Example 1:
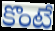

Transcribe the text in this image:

కొంటే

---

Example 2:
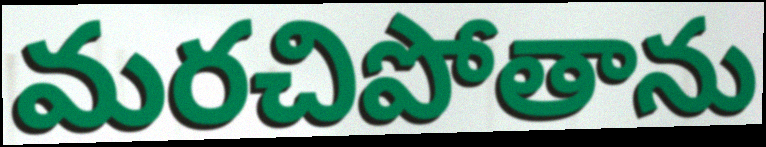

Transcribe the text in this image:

మరచిపోతాను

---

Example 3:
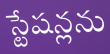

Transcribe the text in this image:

స్టేషన్లను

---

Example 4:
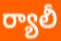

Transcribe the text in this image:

ర్యాలీ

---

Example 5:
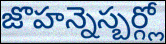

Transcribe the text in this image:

జొహన్నెస్బర్గ్లో